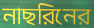
নাছরিনের